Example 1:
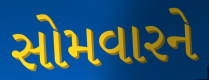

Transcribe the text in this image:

સોમવારને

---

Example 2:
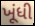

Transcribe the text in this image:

ખૂંધી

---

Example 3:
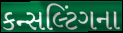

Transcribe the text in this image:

કન્સલ્ટિંગના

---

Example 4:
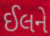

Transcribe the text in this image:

ઈલને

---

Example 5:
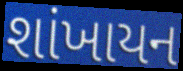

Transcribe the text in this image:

શાંખાયન